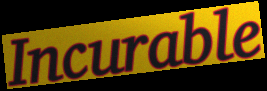
Incurable